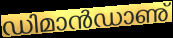
ഡിമാൻഡാണു്